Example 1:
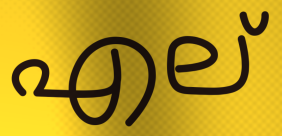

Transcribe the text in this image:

എല്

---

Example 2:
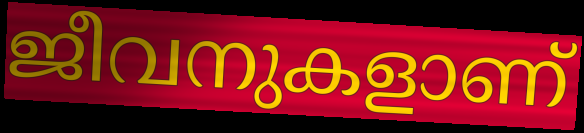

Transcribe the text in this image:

ജീവനുകളാണ്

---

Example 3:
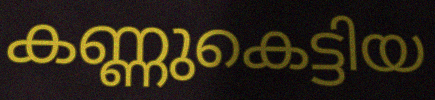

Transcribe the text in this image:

കണ്ണുകെട്ടിയ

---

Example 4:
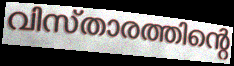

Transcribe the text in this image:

വിസ്‌താരത്തിന്റെ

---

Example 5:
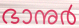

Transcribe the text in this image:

ഭാനുർ